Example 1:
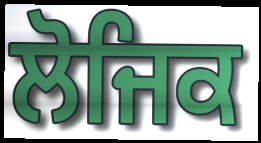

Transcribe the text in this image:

ਲੋਜਿਕ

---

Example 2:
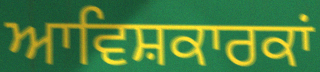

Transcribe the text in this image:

ਆਵਿਸ਼ਕਾਰਕਾਂ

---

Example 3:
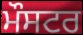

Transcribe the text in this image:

ਮੌਸਟਰ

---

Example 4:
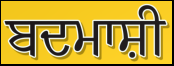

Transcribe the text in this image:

ਬਦਮਾਸ਼ੀ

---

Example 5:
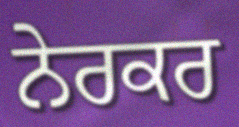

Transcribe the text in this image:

ਨੇਰਕਰ